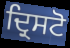
ਦ੍ਰਿਸਟੋ